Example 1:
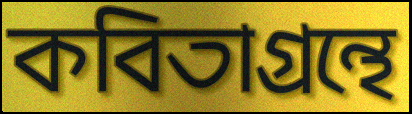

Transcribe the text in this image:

কবিতাগ্রন্থে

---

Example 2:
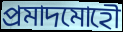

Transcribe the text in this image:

প্রমাদমোহৌ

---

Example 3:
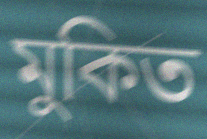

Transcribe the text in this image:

মুকিত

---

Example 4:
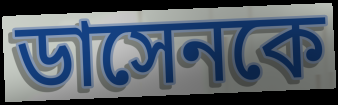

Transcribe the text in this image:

ডাসেনকে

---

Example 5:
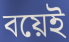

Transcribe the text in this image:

বয়েই